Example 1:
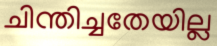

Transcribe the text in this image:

ചിന്തിച്ചതേയില്ല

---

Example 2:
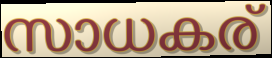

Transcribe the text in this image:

സാധകര്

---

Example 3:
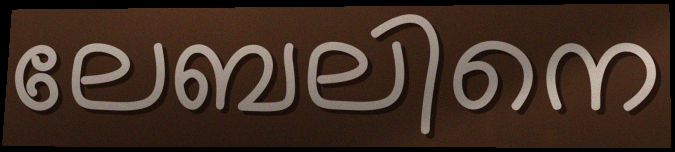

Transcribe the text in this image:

ലേബലിനെ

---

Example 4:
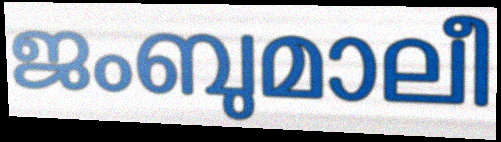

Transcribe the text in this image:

ജംബുമാലീ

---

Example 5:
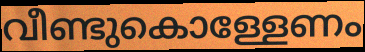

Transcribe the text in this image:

വീണ്ടുകൊള്ളേണം